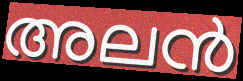
അലൻ